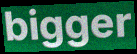
bigger